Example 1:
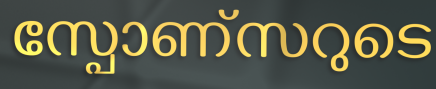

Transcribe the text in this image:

സ്പോണ്സറുടെ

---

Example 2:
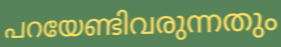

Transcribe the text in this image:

പറയേണ്ടിവരുന്നതും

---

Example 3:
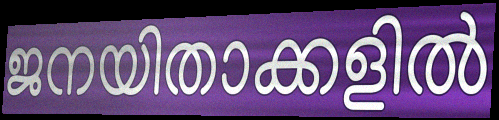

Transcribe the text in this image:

ജനയിതാക്കളിൽ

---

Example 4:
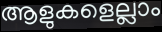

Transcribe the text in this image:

ആളുകളെല്ലാം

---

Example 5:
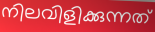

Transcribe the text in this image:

നിലവിളിക്കുന്നത്